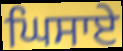
ਘਿਸਾਏ